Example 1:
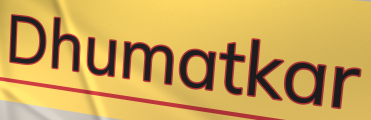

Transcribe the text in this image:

Dhumatkar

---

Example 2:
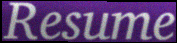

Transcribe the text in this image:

Resume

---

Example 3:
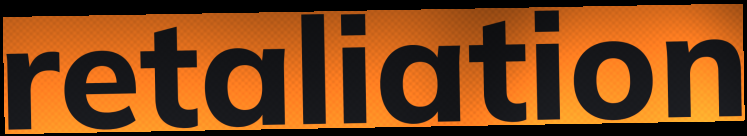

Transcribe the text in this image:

retaliation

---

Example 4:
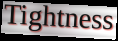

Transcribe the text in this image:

Tightness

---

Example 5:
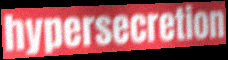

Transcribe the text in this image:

hypersecretion